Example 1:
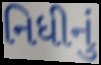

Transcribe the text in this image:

નિધીનું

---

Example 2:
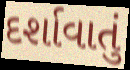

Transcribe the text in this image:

દર્શાવાતું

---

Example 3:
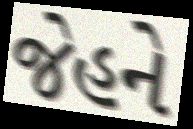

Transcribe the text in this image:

જેહને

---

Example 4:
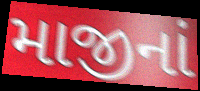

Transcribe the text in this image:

માજીનાં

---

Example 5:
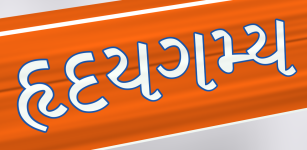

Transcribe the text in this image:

હૃદયગમ્ય